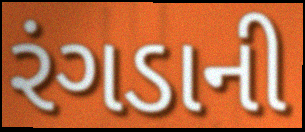
રંગડાની